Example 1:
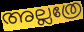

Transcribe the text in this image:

അല്ലത്രേ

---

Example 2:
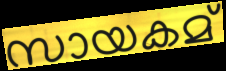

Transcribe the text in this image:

സായകമ്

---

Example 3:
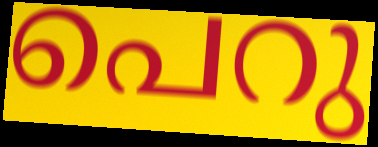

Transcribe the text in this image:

പെറു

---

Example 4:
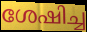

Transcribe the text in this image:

ശേഷിച്ച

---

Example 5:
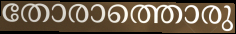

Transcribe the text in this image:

തോരാത്തൊരു